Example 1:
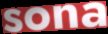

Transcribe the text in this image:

sona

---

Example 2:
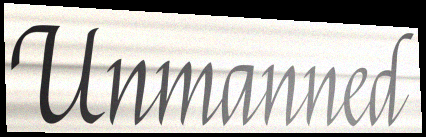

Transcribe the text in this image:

Unmanned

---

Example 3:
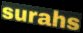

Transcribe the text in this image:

surahs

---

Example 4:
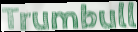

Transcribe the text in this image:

Trumbull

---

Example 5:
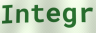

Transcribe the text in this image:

Integr